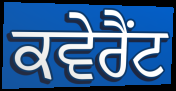
ਕਵੇਰੈਂਟ